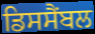
ਡਿਸਸੈਂਬਲ